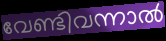
വേണ്ടിവന്നാൽ